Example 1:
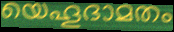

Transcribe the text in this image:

യെഹൂദാമതം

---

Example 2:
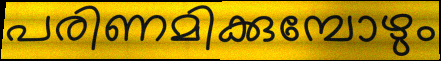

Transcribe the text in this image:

പരിണമിക്കുമ്പോഴും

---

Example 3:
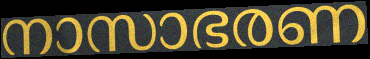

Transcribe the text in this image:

നാസാഭരണ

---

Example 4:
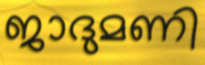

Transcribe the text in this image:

ജാദുമണി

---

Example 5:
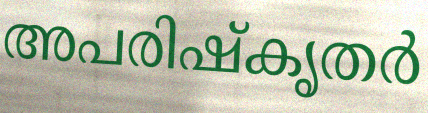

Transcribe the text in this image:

അപരിഷ്കൃതർ